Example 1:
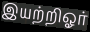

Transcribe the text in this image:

இயற்றிஓர்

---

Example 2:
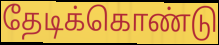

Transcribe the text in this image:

தேடிக்கொண்டு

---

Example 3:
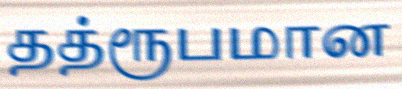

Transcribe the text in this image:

தத்ரூபமான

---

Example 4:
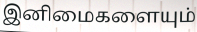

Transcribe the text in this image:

இனிமைகளையும்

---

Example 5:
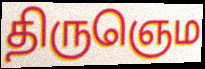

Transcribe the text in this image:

திருஞெம